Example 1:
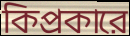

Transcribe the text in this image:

কিপ্রকারে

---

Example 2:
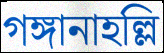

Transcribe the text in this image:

গঙ্গানাহল্লি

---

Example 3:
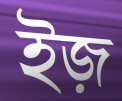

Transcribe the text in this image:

ইজ়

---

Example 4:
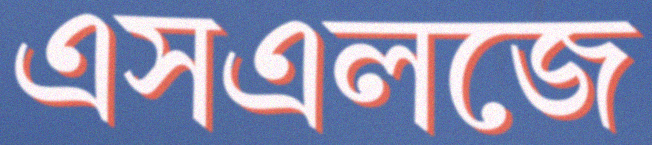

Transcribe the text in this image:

এসএলজে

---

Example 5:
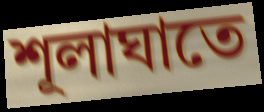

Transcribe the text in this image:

শূলাঘাতে